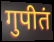
गुपीतं